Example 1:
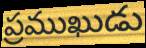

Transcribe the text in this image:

ప్రముఖుడు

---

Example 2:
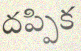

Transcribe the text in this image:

దప్పిక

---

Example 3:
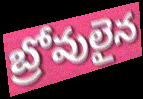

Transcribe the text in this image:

బ్రోవులైన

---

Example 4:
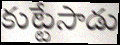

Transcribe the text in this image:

కుట్టేసాడు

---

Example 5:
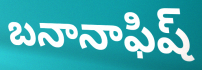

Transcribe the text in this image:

బనానాఫిష్